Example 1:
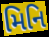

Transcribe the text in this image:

મિનિ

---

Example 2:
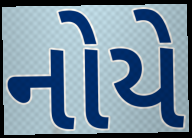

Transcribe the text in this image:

નોયે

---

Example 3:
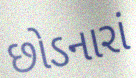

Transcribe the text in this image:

છોડનારાં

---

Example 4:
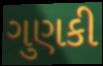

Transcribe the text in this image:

ગુણકી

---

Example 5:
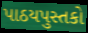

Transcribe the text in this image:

પાઠયપુસ્તકો